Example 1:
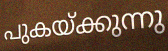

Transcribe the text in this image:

പുകയ്ക്കുന്നു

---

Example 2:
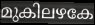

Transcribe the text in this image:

മുകിലഴകേ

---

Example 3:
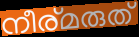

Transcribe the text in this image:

നീര്മരുത്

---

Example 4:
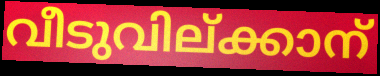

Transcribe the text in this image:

വീടുവില്ക്കാന്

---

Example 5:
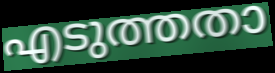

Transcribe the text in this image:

എടുത്തതാ